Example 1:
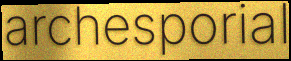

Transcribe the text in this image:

archesporial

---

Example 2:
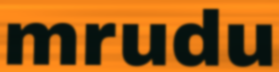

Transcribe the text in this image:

mrudu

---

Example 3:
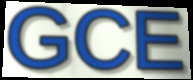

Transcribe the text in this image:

GCE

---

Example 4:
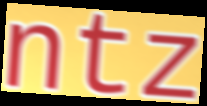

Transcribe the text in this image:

ntz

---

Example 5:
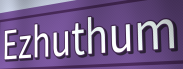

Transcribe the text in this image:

Ezhuthum